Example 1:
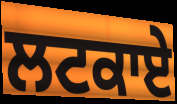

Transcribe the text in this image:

ਲਟਕਾਏ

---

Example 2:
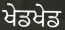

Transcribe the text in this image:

ਖੇਡਖੇਡ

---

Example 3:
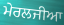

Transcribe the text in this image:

ਮੇਰਲਜੀਆ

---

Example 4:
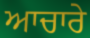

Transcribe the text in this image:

ਆਚਾਰੇ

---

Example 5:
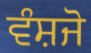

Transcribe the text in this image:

ਵੰਸ਼ਜੋ